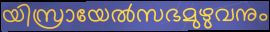
യിസ്രായേൽസഭമുഴുവനും